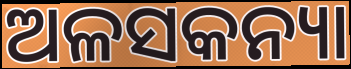
ଅଳସକନ୍ୟା